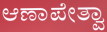
ಆಣಾಪೇತ್ವಾ